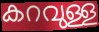
കറവുള്ള